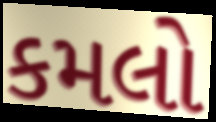
કમલો